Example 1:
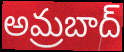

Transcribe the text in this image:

అమ్రబాద్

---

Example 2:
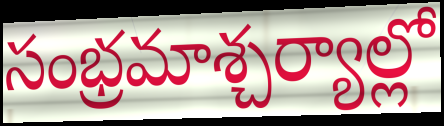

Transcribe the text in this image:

సంభ్రమాశ్చర్యాల్లో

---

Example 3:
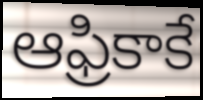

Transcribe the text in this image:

ఆఫ్రికాకే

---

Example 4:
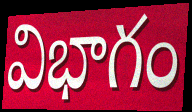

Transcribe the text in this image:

విభాగం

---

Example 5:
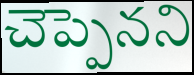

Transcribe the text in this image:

చెప్పెనని